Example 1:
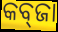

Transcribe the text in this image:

କବ୍‍ଜା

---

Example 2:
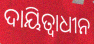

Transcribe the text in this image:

ଦାୟିତ୍ଵାଧୀନ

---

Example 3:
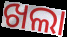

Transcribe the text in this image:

ଖଲା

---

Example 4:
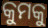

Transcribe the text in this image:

କୁମକୁ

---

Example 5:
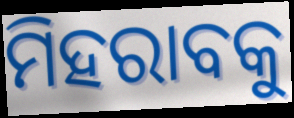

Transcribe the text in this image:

ମିହରାବକୁ